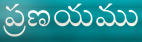
ప్రణయము